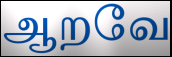
ஆறவே